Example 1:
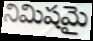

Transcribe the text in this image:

నిమిషమై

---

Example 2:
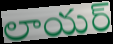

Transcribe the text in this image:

లాయర్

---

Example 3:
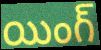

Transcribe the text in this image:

యింగ్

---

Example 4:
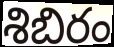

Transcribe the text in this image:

శిబిరం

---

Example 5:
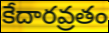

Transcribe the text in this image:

కేదారవ్రతం